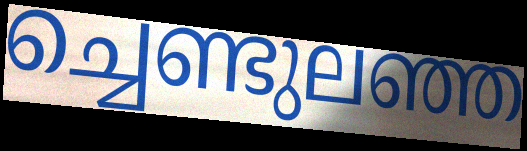
ച്ചെണ്ടുലഞ്ഞ